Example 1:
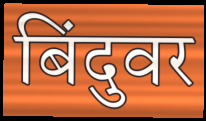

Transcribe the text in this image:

बिंदुवर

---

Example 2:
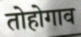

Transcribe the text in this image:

तोहोगाव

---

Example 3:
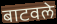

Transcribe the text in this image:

बाटवले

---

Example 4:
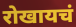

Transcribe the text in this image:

रोखायचं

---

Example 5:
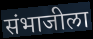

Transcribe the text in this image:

संभाजीला